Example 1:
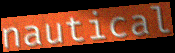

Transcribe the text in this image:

nautical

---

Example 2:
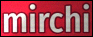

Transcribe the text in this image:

mirchi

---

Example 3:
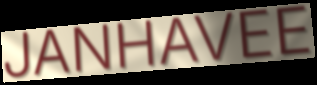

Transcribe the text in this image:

JANHAVEE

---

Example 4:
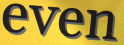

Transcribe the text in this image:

even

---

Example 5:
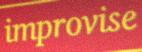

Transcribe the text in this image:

improvise